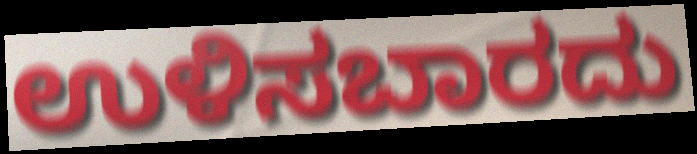
ಉಳಿಸಬಾರದು